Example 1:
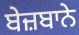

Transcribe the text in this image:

ਬੇਜ਼ਬਾਨੇ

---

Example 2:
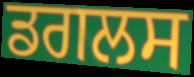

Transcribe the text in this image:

ਡਗਲਸ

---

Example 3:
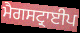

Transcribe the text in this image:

ਮੈਗਸਟ੍ਰਾਈਪ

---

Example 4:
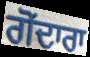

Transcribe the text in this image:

ਗੋਂਦਾਰਾ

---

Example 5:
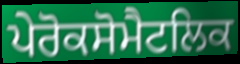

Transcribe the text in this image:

ਪੇਰੋਕਸੋਮੈਟਲਿਕ